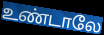
உண்டாலே